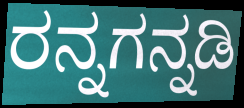
ರನ್ನಗನ್ನಡಿ